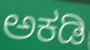
ಅಕಡಿ